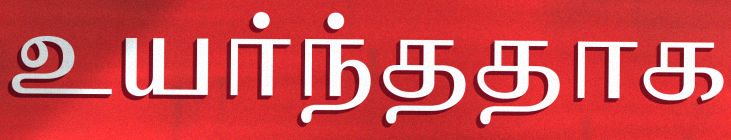
உயர்ந்ததாக